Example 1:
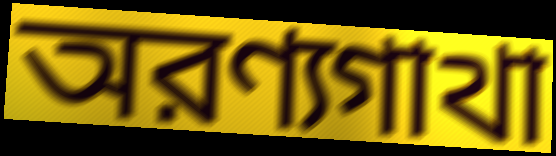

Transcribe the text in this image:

অরণ্যগাথা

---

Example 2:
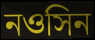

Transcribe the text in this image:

নওসিন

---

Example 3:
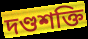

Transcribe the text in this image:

দণ্ডশক্তি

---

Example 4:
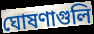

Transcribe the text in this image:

ঘোষণাগুলি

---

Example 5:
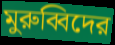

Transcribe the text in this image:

মুরুব্বিদের